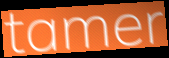
tamer